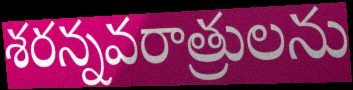
శరన్నవరాత్రులను